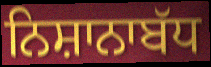
ਨਿਸ਼ਾਨਾਬੱਧ